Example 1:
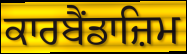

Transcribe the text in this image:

ਕਾਰਬੈਂਡਾਜ਼ਿਮ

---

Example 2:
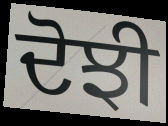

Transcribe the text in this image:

ਦੋਝੀ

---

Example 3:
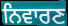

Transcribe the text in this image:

ਨਿਵਾਰਣ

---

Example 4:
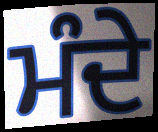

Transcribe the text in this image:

ਮੰਦੇ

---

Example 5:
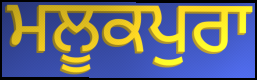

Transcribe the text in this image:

ਮਲੂਕਪੁਰਾ